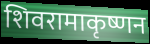
शिवरामाकृष्णन